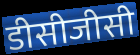
डीसीजीसी